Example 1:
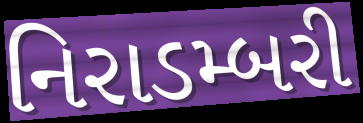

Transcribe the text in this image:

નિરાડમ્બરી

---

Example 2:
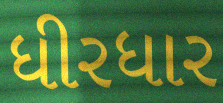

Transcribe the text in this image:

ધીરધાર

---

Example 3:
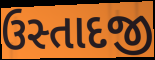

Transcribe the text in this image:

ઉસ્તાદજી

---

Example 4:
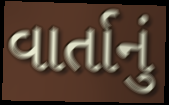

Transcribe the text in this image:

વાર્તાનું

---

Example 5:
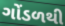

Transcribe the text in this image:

ગોંડળથી